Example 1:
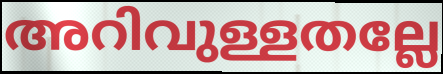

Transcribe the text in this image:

അറിവുള്ളതല്ലേ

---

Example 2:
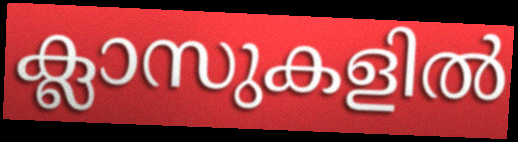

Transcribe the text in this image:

ക്ലാസുകളിൽ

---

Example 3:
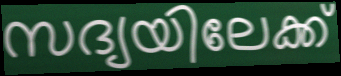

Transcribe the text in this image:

സദ്യയിലേക്ക്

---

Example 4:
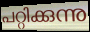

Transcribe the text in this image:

പറ്റിക്കുന്നു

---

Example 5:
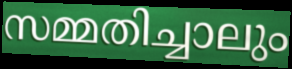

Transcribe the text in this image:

സമ്മതിച്ചാലും